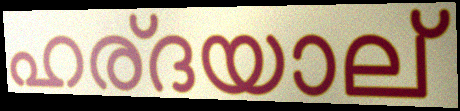
ഹര്ദയാല്